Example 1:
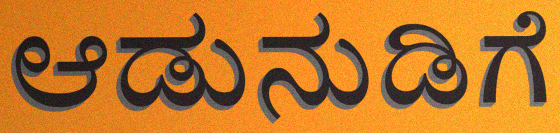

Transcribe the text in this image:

ಆಡುನುಡಿಗೆ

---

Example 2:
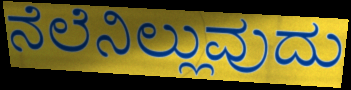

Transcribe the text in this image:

ನೆಲೆನಿಲ್ಲುವುದು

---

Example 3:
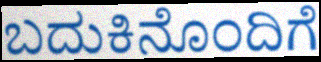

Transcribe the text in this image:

ಬದುಕಿನೊಂದಿಗೆ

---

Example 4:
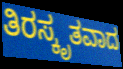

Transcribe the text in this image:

ತಿರಸ್ಕೃತವಾದ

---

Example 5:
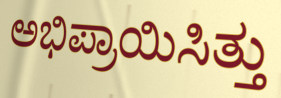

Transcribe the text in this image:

ಅಭಿಪ್ರಾಯಿಸಿತ್ತು